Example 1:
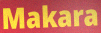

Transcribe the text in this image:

Makara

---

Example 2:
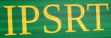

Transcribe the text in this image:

IPSRT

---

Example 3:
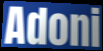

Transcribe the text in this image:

Adoni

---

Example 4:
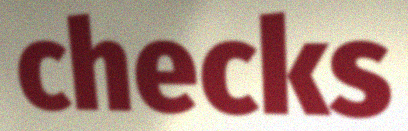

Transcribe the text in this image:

checks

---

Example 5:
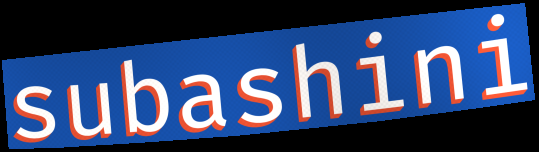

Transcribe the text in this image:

subashini